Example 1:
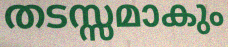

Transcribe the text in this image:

തടസ്സമാകും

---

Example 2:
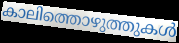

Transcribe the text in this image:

കാലിത്തൊഴുത്തുകൾ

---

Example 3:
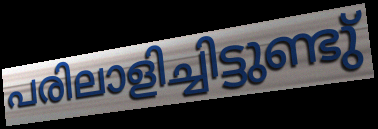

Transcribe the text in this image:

പരിലാളിച്ചിട്ടുണ്ടു്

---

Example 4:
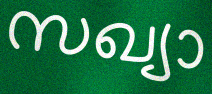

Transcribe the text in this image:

സഖ്യാ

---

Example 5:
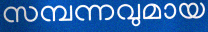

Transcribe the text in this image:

സമ്പന്നവുമായ